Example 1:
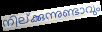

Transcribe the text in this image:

നില്ക്കുന്നുണ്ടാവും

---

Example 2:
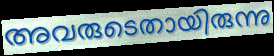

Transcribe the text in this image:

അവരുടെതായിരുന്നു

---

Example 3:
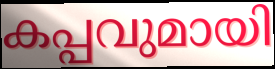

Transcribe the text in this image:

കപ്പവുമായി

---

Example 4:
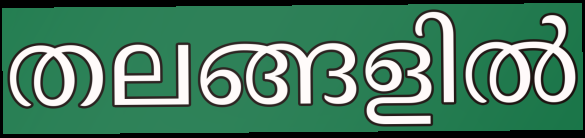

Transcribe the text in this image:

തലങ്ങളിൽ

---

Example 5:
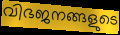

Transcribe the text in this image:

വിഭജനങ്ങളുടെ